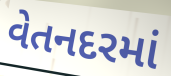
વેતનદરમાં